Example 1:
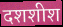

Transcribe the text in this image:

दशशीश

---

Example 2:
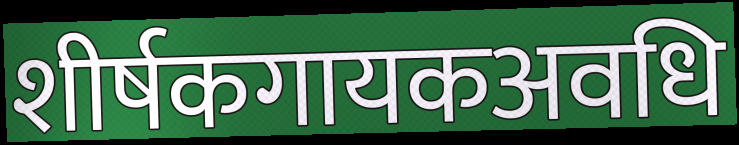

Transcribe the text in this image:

शीर्षकगायकअवधि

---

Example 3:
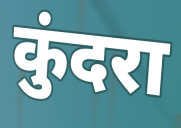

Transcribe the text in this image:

कुंदरा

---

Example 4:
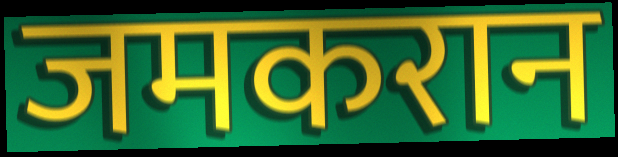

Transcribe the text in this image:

जमकरान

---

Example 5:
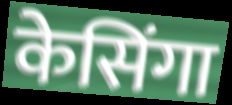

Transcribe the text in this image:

केसिंगा